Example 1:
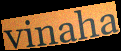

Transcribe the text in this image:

vinaha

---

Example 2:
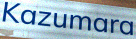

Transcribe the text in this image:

Kazumara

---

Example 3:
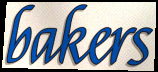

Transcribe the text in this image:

bakers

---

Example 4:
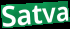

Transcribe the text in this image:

Satva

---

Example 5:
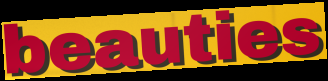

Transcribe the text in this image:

beauties